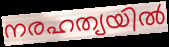
നരഹത്യയിൽ